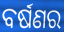
ବର୍ଷଣର